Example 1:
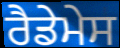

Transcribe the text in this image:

ਰੈਡੇਮੇਸ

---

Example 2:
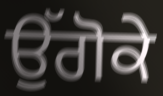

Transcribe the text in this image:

ਉੱਗੋਕੇ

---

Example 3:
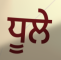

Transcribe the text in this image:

ਧੂਲੇ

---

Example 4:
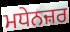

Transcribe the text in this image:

ਮਧੇਨਜ਼ਰ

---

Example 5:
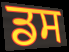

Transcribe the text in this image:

ਡਸ